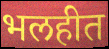
भलहीत